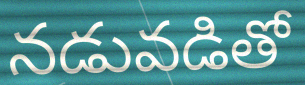
నడువడితో